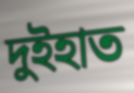
দুইহাত